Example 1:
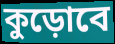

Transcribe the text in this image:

কুড়োবে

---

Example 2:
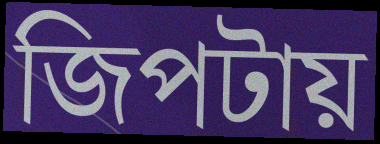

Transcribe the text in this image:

জিপটায়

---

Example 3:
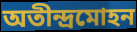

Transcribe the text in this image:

অতীন্দ্রমোহন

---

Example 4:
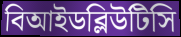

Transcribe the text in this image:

বিআইডব্লিউটিসি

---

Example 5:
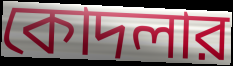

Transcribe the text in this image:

কোদলার